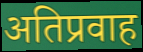
अतिप्रवाह